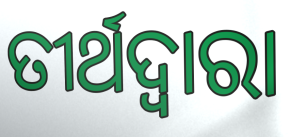
ତୀର୍ଥଦ୍ବାରା